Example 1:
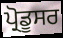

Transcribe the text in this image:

ਪ੍ਰੋਡੂਸਰ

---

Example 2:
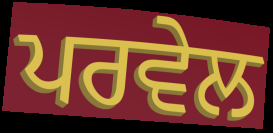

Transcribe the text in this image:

ਪਰਵੇਲ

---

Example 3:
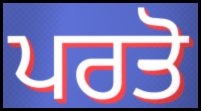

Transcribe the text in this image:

ਪਰਤੋ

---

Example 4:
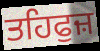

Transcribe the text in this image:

ਤਹਿਫੁਜ਼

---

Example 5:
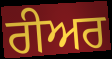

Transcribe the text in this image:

ਰੀਅਰ